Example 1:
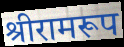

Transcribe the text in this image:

श्रीरामरूप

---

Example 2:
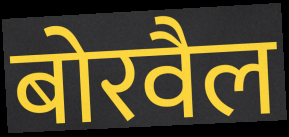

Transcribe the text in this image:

बोरवैल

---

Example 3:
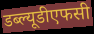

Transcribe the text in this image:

डब्ल्यूडीएफसी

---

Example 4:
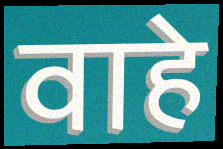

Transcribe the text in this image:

वाहे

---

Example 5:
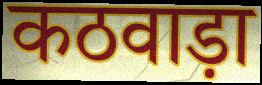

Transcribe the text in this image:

कठवाड़ा